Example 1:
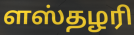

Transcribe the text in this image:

ளஸ்தழரி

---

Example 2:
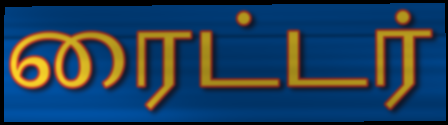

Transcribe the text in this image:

ரைட்டர்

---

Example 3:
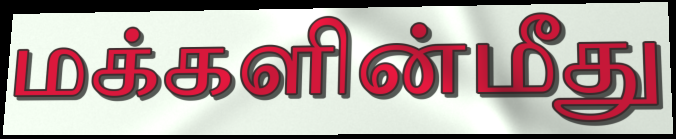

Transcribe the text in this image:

மக்களின்மீது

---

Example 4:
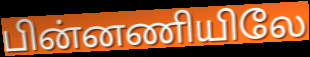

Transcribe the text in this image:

பின்னணியிலே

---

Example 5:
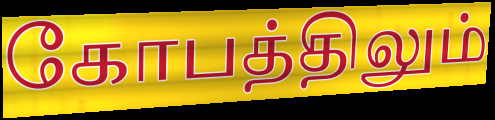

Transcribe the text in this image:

கோபத்திலும்